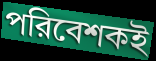
পরিবেশকই